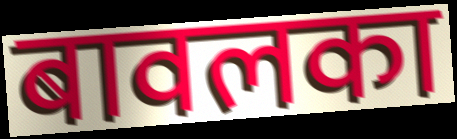
बावलका